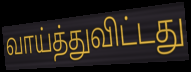
வாய்த்துவிட்டது